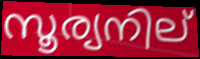
സൂര്യനില്